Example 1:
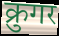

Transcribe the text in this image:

क्रुगर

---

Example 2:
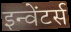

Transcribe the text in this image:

इन्वेंटर्स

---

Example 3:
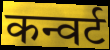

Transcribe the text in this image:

कन्वर्ट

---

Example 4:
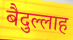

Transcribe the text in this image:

बैदुल्लाह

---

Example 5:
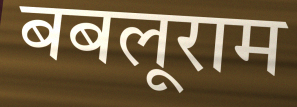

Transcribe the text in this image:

बबलूराम